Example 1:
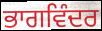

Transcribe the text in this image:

ਭਾਗਵਿੰਦਰ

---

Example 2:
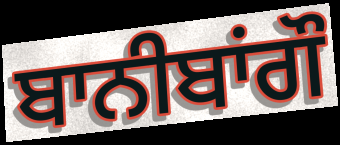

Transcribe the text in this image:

ਬਾਨੀਬਾਂਗੌ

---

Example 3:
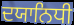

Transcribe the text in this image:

ਦਯਾਨਿਧੀ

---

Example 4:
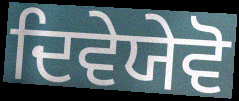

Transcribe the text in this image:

ਦਿਵੇਯੇਵੋ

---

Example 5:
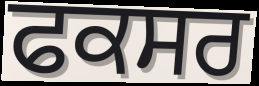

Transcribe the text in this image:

ਫਕਸਰ